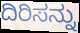
ದಿರಿಸನ್ನು